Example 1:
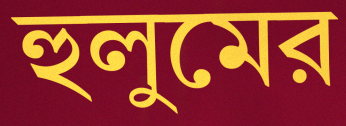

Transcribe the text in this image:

হুলুমের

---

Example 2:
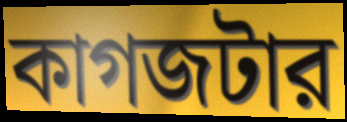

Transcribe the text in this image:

কাগজটার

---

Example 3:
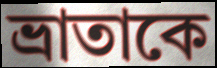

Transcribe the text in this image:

ভ্রাতাকে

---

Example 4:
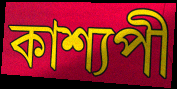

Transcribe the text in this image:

কাশ্যপী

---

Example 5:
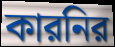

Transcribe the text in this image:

কারনির